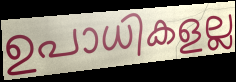
ഉപാധികളല്ല